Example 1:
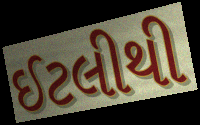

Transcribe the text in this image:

ઈટલીથી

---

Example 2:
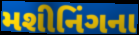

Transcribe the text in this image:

મશીનિંગના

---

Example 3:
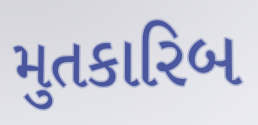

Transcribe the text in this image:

મુતકારિબ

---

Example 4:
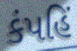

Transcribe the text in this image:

કંપહિં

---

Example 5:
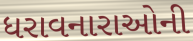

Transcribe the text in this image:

ધરાવનારાઓની